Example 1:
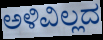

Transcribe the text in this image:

ಅಳಿವಿಲ್ಲದ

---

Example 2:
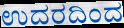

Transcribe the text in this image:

ಉದರದಿಂದ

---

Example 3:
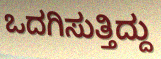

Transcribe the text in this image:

ಒದಗಿಸುತ್ತಿದ್ದು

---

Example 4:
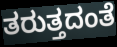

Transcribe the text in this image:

ತರುತ್ತದಂತೆ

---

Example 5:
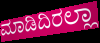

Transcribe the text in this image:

ಮಾಡಿದಿರಲ್ಲಾ